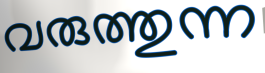
വരുത്തുന്ന